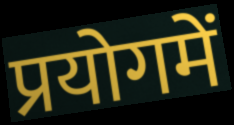
प्रयोगमें